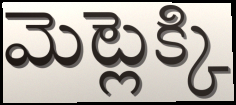
మెట్లెక్కి